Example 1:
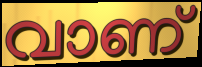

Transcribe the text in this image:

വാണ്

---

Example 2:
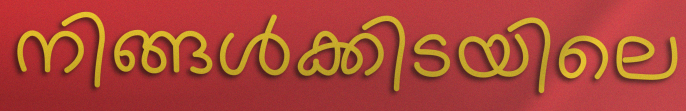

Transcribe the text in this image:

നിങ്ങൾക്കിടയിലെ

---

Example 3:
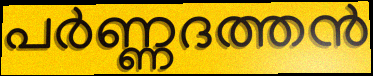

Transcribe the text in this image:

പർണ്ണദത്തൻ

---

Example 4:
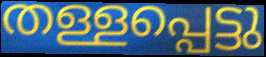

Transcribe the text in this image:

തള്ളപ്പെട്ടു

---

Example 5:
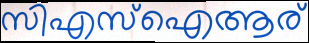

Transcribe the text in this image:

സിഎസ്ഐആര്